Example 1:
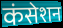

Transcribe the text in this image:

कंसेशन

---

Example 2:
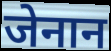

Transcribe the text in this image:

जेनान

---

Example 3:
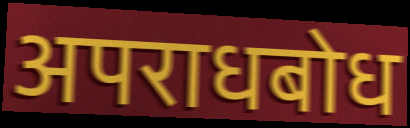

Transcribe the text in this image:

अपराधबोध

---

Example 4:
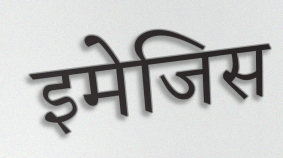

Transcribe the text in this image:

इमेजिस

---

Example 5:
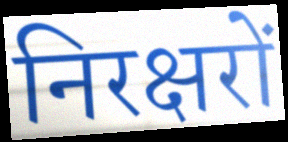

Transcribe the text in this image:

निरक्षरों